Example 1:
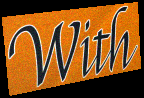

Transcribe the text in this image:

With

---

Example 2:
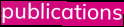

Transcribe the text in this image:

publications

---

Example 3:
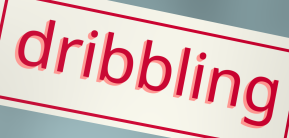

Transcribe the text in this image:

dribbling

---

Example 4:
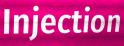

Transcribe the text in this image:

Injection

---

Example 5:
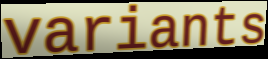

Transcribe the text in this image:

variants